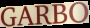
GARBO